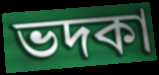
ভদকা